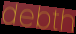
debth